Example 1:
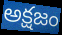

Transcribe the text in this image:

అక్షజం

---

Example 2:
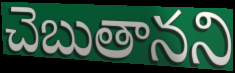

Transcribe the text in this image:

చెబుతానని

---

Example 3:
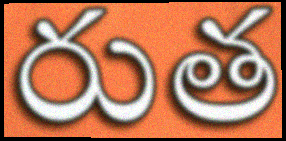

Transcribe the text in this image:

రుత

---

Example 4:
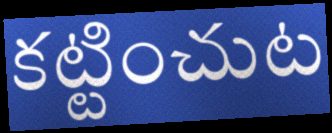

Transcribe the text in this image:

కట్టించుట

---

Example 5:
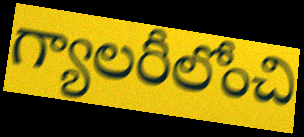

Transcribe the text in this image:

గ్యాలరీలోంచి